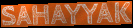
SAHAYYAK